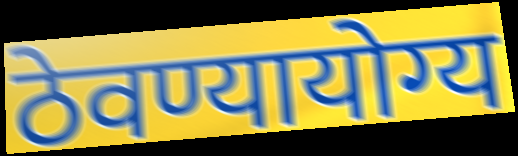
ठेवण्यायोग्य